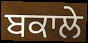
ਬਕਾਲੇ